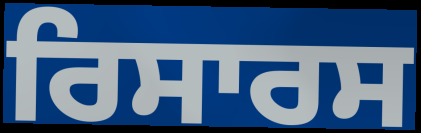
ਰਿਸਾਰਸ